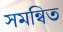
সমন্বিত